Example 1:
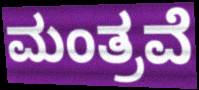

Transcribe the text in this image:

ಮಂತ್ರವೆ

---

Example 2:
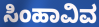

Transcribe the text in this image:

ಸಿಂಹಾವಿವ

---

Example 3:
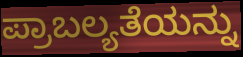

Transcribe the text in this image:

ಪ್ರಾಬಲ್ಯತೆಯನ್ನು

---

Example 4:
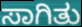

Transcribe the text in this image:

ಸಾಗಿತು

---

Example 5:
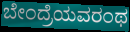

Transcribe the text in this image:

ಬೇಂದ್ರೆಯವರಂಥ